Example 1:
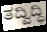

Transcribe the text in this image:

ತದ್ವಿದ್ಧಿ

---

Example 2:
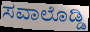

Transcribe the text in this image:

ಸವಾಲೊಡ್ಡಿ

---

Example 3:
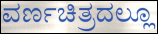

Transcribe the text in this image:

ವರ್ಣಚಿತ್ರದಲ್ಲೂ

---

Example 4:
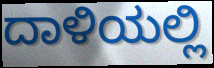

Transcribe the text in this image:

ದಾಳಿಯಲ್ಲಿ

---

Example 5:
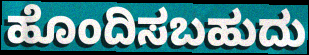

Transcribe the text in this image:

ಹೊಂದಿಸಬಹುದು